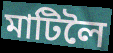
মাটিলৈ